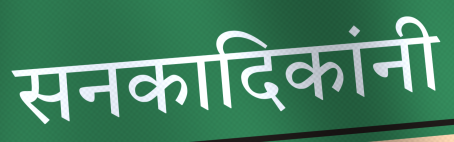
सनकादिकांनी